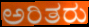
ಅರಿತರು